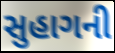
સુહાગની